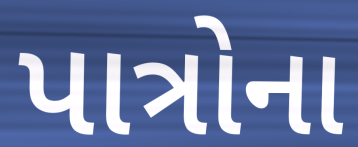
પાત્રોના